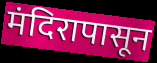
मंदिरापासून